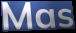
Mas